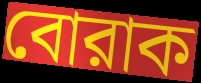
বোরাক